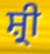
ਸ਼੍ਰੀ